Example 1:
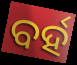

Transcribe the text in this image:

ବର୍ହ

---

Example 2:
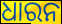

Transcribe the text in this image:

ଧାରନ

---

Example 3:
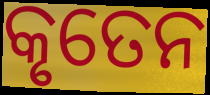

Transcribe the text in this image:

କୃତେନ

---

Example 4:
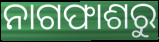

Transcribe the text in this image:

ନାଗଫାଶରୁ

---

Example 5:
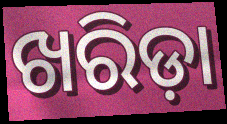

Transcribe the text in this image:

ଖରିଡ଼ା